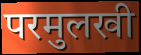
परमुलखी